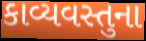
કાવ્યવસ્તુના